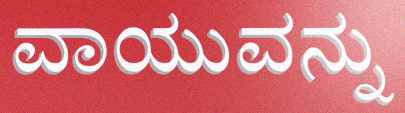
ವಾಯುವನ್ನು